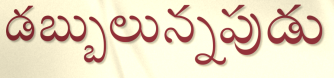
డబ్బులున్నపుడు